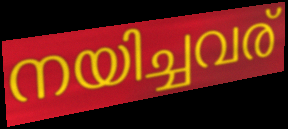
നയിച്ചവര്